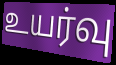
உயர்வு